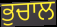
ਭੁਚਾਲ